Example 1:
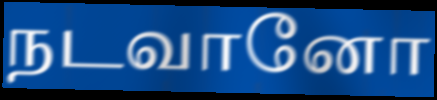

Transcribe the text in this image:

நடவானோ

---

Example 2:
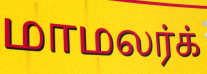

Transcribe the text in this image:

மாமலர்க்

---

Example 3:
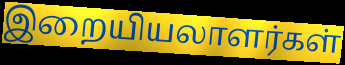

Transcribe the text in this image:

இறையியலாளர்கள்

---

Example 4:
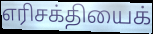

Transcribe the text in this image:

எரிசக்தியைக்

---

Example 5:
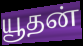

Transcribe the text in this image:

யூதன்